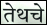
तेथचे